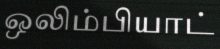
ஒலிம்பியாட்